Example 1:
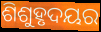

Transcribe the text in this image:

ଶିଶୁହୃଦୟର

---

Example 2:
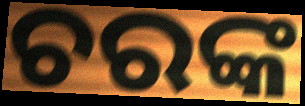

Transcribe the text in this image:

ଚରଙ୍କ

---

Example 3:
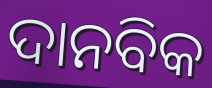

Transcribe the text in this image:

ଦାନବିକ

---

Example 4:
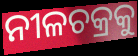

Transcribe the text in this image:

ନୀଳଚକ୍ରକୁ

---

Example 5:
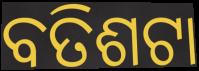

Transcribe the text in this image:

ବତିଶଟା